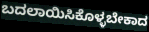
ಬದಲಾಯಿಸಿಕೊಳ್ಳಬೇಕಾದ